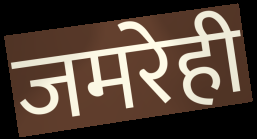
जमरेही